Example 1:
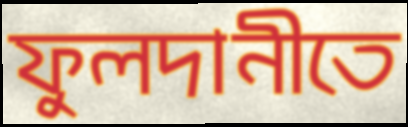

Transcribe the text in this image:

ফুলদানীতে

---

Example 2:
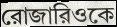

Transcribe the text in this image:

রোজারিওকে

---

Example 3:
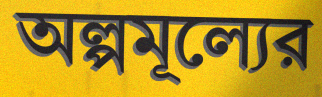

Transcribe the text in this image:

অল্পমূল্যের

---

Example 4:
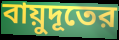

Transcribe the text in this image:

বায়ুদূতের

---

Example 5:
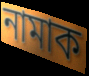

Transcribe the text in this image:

নামাক